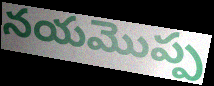
నయమొప్ప